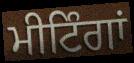
ਮੀਟਿੰਗਾਂ